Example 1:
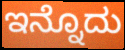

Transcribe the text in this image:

ಇನ್ನೊದು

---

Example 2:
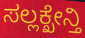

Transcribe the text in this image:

ಸಲ್ಲಕ್ಖೇನ್ತಿ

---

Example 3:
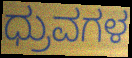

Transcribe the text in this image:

ಧ್ರುವಗಳ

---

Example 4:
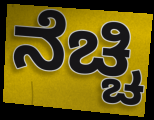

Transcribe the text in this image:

ನೆಚ್ಚಿ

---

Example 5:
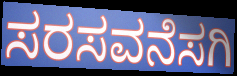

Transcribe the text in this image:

ಸರಸವನೆಸಗಿ